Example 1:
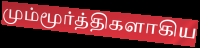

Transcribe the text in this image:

மும்மூர்த்திகளாகிய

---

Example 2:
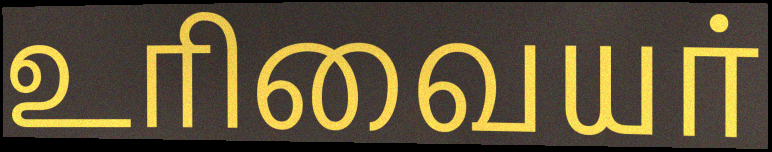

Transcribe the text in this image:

உரிவையர்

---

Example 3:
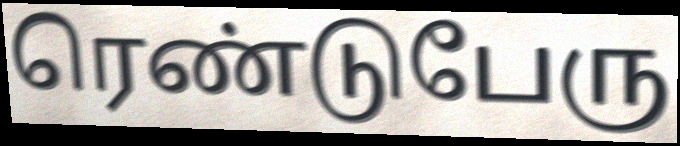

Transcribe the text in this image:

ரெண்டுபேரு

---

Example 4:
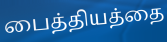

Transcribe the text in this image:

பைத்தியத்தை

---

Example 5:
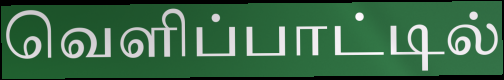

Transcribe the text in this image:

வெளிப்பாட்டில்